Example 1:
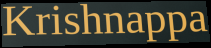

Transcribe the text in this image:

Krishnappa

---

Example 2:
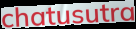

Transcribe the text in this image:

chatusutra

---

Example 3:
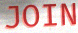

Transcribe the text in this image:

JOIN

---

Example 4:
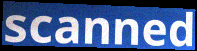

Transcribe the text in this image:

scanned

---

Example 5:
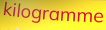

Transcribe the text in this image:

kilogramme